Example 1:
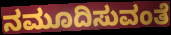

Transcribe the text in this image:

ನಮೂದಿಸುವಂತೆ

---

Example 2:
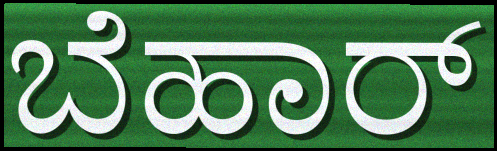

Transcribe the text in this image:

ಬೆಹಾರ್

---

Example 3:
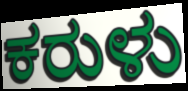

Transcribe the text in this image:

ಕರುಳು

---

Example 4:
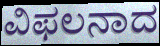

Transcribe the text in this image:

ವಿಫಲನಾದ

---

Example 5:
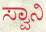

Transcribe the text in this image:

ಸ್ವಾನಿ